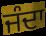
ਜੰਦਾ